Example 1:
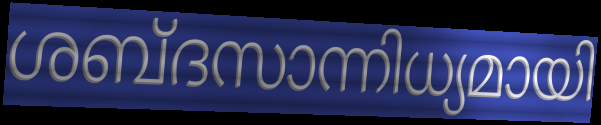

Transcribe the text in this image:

ശബ്ദസാന്നിധ്യമായി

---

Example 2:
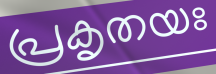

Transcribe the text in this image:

പ്രകൃതയഃ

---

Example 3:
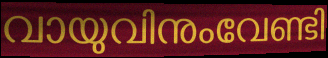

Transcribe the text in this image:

വായുവിനുംവേണ്ടി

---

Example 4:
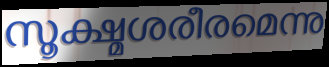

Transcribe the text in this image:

സൂക്ഷ്മശരീരമെന്നു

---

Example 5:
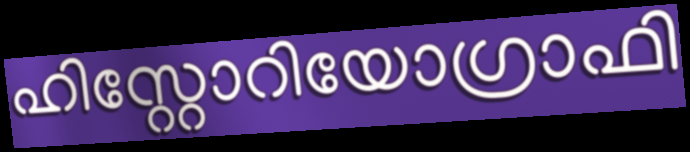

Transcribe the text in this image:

ഹിസ്റ്റോറിയോഗ്രാഫി